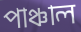
পাঞ্চাল